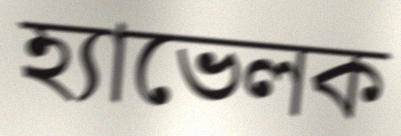
হ্যাভেলক